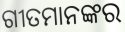
ଗୀତମାନଙ୍କର